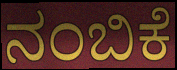
ನಂಬಿಕೆ